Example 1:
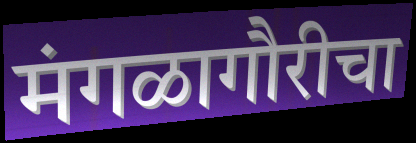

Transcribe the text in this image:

मंगळागौरीचा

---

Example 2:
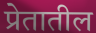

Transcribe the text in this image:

प्रेतातील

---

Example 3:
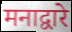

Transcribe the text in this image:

मनाद्वारे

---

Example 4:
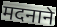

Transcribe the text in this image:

मदनाने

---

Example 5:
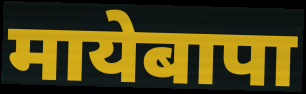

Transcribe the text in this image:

मायेबापा